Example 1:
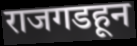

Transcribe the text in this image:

राजगडहून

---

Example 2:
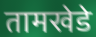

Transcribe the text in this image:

तामखेडे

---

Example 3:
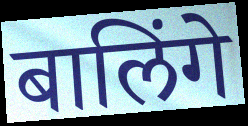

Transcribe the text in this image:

बालिंगे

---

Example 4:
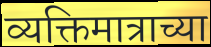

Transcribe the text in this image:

व्यक्तिमात्राच्या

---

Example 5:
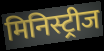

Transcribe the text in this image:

मिनिस्ट्रीज